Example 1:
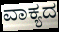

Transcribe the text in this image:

ವಾಕ್ಯದ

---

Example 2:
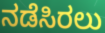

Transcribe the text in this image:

ನಡೆಸಿರಲು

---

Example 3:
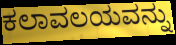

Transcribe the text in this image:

ಕಲಾವಲಯವನ್ನು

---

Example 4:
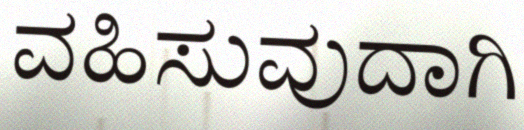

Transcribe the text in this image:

ವಹಿಸುವುದಾಗಿ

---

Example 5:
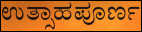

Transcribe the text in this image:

ಉತ್ಸಾಹಪೂರ್ಣ